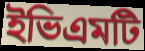
ইভিএমটি